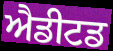
ਐਡੀਟਡ